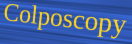
Colposcopy